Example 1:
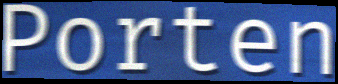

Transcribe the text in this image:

Porten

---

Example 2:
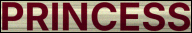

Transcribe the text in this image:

PRINCESS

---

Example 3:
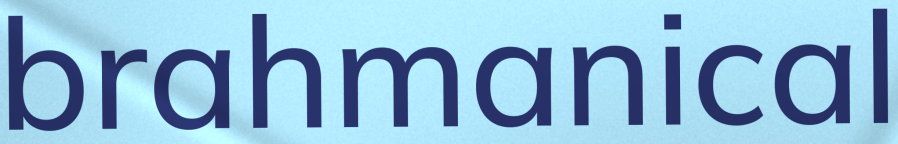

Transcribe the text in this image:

brahmanical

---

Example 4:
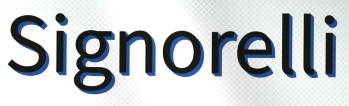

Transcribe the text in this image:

Signorelli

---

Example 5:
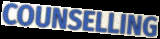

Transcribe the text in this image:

COUNSELLING